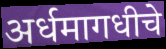
अर्धमागधीचे